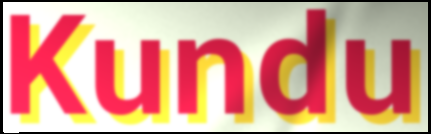
Kundu